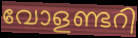
വോളണ്ടറി